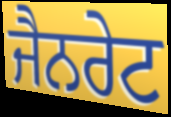
ਜੈਨਰੇਟ